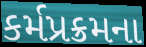
કર્મપ્રક્રમના